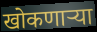
खोकणाऱ्या